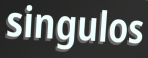
singulos